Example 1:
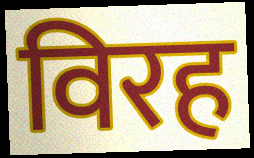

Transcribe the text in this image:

विरह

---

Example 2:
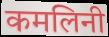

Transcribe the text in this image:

कमलिनी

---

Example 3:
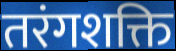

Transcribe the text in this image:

तरंगशक्ति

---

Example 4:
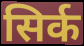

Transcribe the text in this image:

सिर्क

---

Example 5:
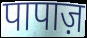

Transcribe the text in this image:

पापाज़